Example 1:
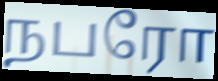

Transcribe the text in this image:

நபரோ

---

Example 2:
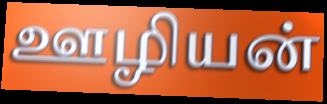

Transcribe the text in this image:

ஊழியன்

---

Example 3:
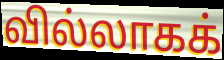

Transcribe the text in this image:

வில்லாகக்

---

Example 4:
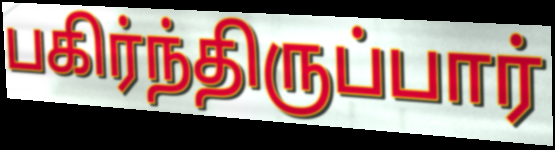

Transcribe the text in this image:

பகிர்ந்திருப்பார்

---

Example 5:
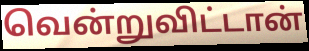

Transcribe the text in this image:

வென்றுவிட்டான்